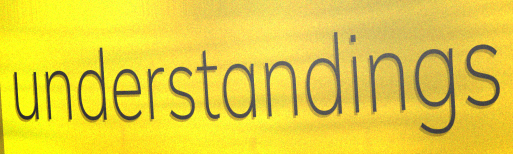
understandings